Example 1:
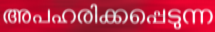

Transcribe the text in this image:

അപഹരിക്കപ്പെടുന്ന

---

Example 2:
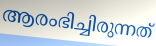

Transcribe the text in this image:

ആരംഭിച്ചിരുന്നത്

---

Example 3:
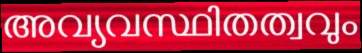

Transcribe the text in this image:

അവ്യവസ്ഥിതത്വവും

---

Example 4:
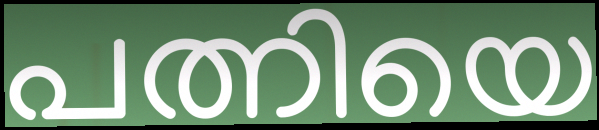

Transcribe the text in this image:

പത്നിയെ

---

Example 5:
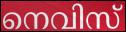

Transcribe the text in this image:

നെവിസ്